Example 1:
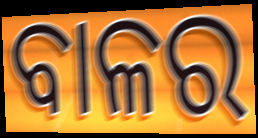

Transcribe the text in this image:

ବାଳର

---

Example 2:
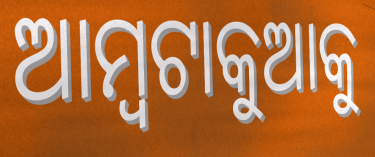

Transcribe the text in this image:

ଆମ୍ବଟାକୁଆକୁ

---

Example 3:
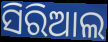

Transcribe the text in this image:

ସିରିଆଲ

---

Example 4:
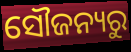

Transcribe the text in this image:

ସୌଜନ୍ୟରୁ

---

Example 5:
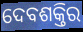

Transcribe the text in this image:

ଦେବଶକ୍ତିର